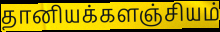
தானியக்களஞ்சியம்